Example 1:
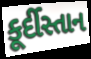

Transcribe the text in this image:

કૂર્દીસ્તાન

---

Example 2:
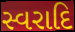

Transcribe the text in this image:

સ્વરાદિ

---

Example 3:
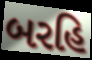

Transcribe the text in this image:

બરહિ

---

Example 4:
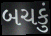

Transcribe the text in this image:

બચકું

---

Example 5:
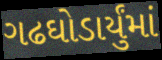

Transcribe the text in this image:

ગઢઘોડાર્યુંમાં